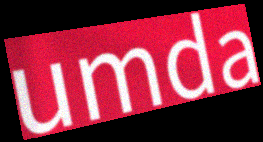
umda